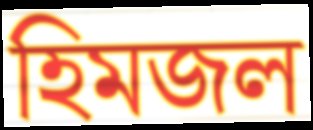
হিমজল